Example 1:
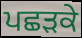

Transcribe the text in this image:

ਪਛੜਕੇ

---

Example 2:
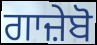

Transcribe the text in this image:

ਗਾਜ਼ੇਬੋ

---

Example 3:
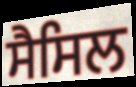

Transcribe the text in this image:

ਸੈਸਿਲ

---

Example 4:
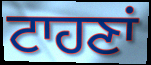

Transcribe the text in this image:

ਟਾਹਣਾਂ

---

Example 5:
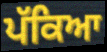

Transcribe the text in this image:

ਪੱਕਿਆ